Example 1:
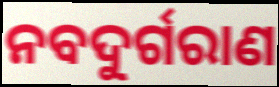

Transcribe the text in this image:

ନବଦୁର୍ଗରାଣ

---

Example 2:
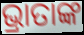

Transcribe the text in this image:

ଭ୍ରାତାଙ୍କ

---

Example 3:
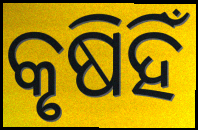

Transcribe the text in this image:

କୃଷିହିଁ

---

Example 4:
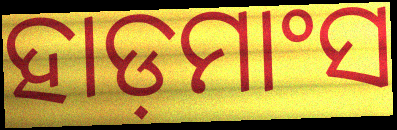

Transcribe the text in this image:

ହାଡ଼ମାଂସ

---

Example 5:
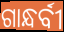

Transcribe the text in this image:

ଗାନ୍ଧର୍ବୀ